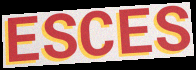
ESCES